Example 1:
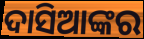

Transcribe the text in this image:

ଦାସିଆଙ୍କର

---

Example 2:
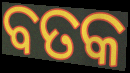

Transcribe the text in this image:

ବତକ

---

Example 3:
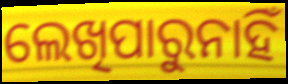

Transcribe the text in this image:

ଲେଖିପାରୁନାହିଁ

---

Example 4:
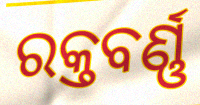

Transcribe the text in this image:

ରକ୍ତବର୍ଣ୍ଣ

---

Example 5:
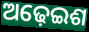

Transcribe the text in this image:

ଅଢ଼େଇଶ